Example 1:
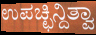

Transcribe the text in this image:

ಉಪಚ್ಛಿನ್ದಿತ್ವಾ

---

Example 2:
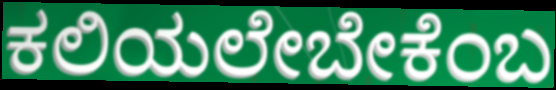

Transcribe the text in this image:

ಕಲಿಯಲೇಬೇಕೆಂಬ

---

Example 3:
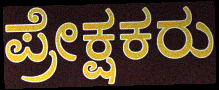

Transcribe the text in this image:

ಪ್ರೇಕ್ಷಕರು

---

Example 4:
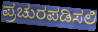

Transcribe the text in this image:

ಪ್ರಚುರಪಡಿಸಲಿ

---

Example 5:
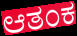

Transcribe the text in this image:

ಆತಂಕ